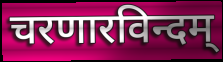
चरणारविन्दम्